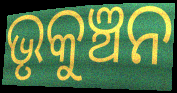
ଭୃକୁଞ୍ଚନ